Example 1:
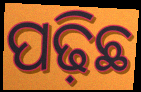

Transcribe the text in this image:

ପଢ଼ିଛ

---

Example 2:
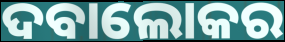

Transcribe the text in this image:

ଦବାଲୋକର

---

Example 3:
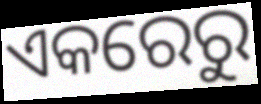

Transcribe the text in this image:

ଏକରେରୁ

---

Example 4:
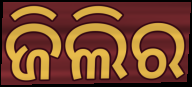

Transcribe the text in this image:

ଜିଲିର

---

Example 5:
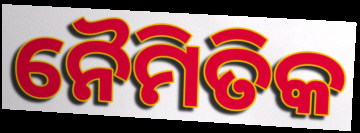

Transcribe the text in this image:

ନୈମିତିକ